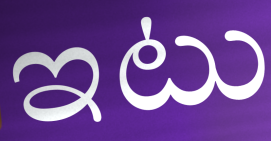
ఇటు